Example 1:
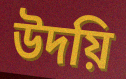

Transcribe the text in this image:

উদয়ি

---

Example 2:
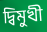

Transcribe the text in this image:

দ্বিমুখী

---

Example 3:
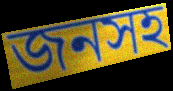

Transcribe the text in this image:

জনসহ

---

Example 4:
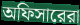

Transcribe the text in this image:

অফিসারেরা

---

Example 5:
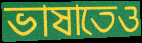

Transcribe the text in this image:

ভাষাতেও